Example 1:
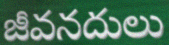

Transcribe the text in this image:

జీవనదులు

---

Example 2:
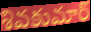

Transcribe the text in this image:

శివకుమార్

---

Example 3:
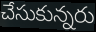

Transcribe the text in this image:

చేసుకున్నరు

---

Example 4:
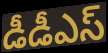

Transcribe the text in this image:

డీడీఎస్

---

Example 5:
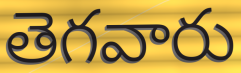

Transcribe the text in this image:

తెగవారు